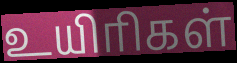
உயிரிகள்